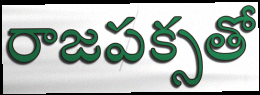
రాజపక్సతో